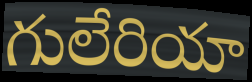
గులేరియా